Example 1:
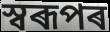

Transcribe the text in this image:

স্বৰূপৰ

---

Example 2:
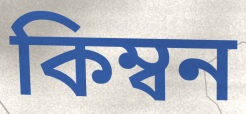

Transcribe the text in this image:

কিম্বন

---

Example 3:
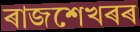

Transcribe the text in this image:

ৰাজশেখৰৰ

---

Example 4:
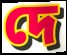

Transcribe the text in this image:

দে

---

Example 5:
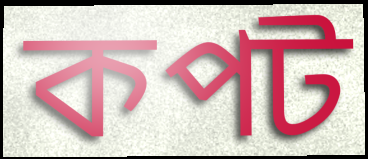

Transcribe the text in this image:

কপট